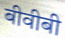
बीवीबी